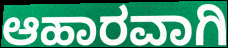
ಆಹಾರವಾಗಿ